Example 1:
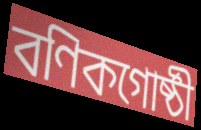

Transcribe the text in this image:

বণিকগোষ্ঠী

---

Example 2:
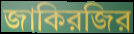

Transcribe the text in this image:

জাকিরজির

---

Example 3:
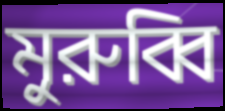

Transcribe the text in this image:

মুরুব্বি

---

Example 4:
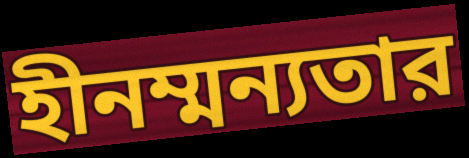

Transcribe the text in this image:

হীনম্মন্যতার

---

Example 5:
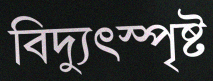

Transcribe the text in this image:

বিদ্যুৎস্পৃষ্ট